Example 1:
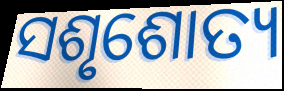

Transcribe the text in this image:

ସଶୃଶୋତ୍ୟ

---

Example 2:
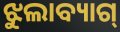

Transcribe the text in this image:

ଝୁଲାବ୍ୟାଗ୍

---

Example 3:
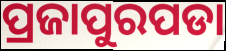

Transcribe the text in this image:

ପ୍ରଜାପୁରପଡା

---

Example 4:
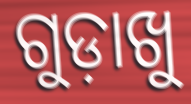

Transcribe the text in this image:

ଗୁଡ଼ାଖୁ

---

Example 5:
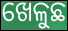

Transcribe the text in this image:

ଖେଳୁଛ